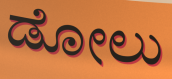
ಡೋಲು